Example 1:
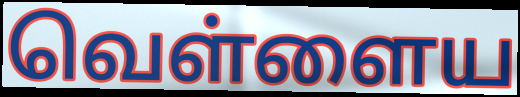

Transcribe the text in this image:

வெள்ளைய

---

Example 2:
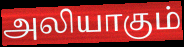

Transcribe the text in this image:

அலியாகும்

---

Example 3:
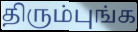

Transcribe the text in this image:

திரும்புங்க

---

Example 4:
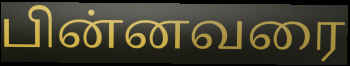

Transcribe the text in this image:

பின்னவரை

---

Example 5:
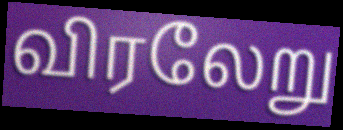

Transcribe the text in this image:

விரலேறு